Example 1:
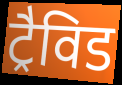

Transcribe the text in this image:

ट्रैविड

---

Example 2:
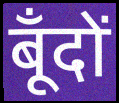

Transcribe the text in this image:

बूँदों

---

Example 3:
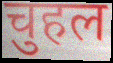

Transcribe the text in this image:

चुहल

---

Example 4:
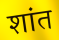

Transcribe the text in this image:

शांत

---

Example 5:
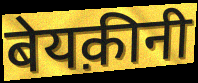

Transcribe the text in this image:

बेयक़ीनी